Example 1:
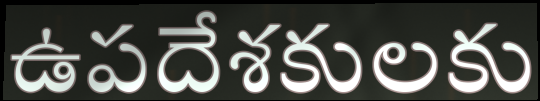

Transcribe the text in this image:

ఉపదేశకులకు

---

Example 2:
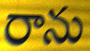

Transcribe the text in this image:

రాను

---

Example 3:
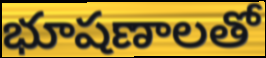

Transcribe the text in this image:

భూషణాలతో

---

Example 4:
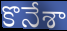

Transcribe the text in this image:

కొనేశా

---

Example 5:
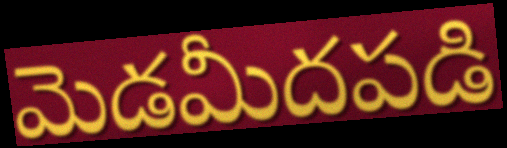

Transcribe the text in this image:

మెడమీదపడి